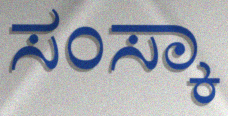
ಸಂಸ್ಕಾ